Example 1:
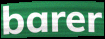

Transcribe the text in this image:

barer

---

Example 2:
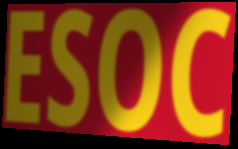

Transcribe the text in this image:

ESOC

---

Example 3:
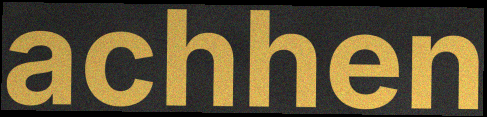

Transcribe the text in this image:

achhen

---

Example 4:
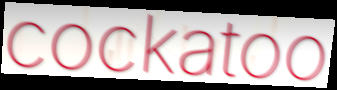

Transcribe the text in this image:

cockatoo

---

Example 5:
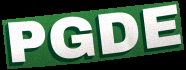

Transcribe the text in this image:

PGDE